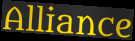
Alliance